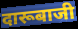
दारूबाजी